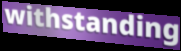
withstanding